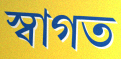
স্বাগত